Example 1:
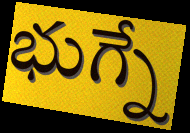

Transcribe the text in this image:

భుగ్నే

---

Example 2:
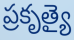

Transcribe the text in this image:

ప్రకృత్యై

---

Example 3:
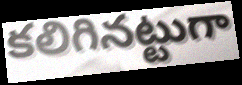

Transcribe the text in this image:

కలిగినట్టుగా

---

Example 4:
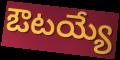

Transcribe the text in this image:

ఔటయ్యే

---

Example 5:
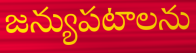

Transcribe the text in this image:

జన్యుపటాలను